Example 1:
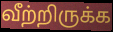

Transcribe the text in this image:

வீற்றிருக்க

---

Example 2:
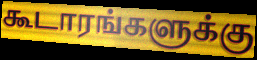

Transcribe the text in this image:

கூடாரங்களுக்கு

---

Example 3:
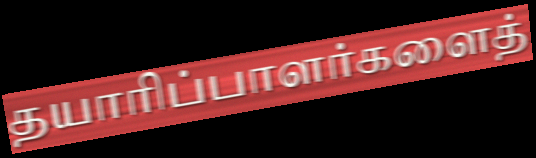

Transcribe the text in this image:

தயாரிப்பாளர்களைத்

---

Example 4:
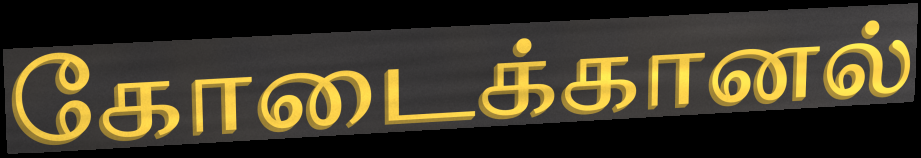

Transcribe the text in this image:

கோடைக்கானல்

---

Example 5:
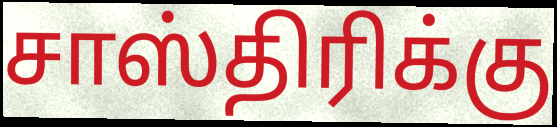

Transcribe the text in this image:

சாஸ்திரிக்கு